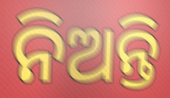
ନିଅନ୍ତି